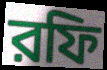
রফি